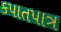
કપાતપાત્ર